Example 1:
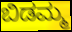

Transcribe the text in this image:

ಬಿಡಮ್ಮ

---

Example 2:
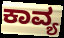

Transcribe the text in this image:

ಕಾವ್ಯ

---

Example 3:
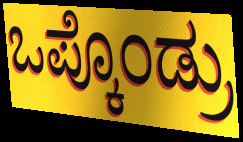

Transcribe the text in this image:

ಒಪ್ಕೊಂಡ್ರು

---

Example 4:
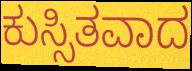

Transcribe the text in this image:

ಕುಸ್ಸಿತವಾದ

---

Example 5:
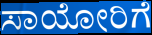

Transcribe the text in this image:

ಸಾಯೋರಿಗೆ